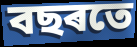
বছৰতে